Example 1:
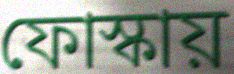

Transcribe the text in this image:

ফোস্কায়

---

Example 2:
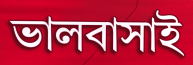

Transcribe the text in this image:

ভালবাসাই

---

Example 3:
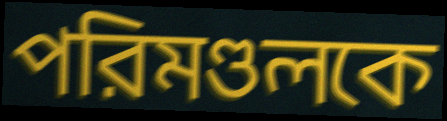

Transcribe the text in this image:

পরিমণ্ডলকে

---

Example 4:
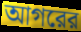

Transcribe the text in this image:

আগরের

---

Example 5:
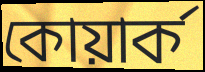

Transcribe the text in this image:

কোয়ার্ক